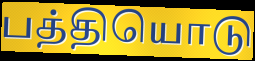
பத்தியொடு